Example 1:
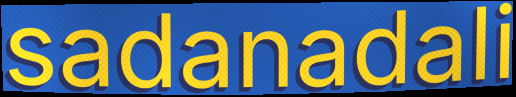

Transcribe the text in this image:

sadanadali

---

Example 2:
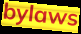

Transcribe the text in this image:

bylaws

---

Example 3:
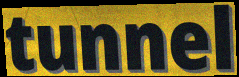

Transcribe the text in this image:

tunnel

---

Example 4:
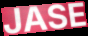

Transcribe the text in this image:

JASE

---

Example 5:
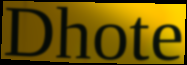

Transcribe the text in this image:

Dhote